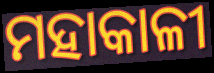
ମହାକାଳୀ